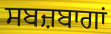
ਸਬਜ਼ਬਾਗਾਂ